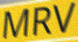
MRV